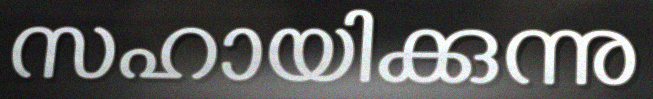
സഹായിക്കുന്നു